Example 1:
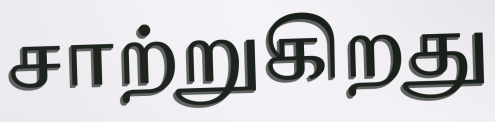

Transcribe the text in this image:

சாற்றுகிறது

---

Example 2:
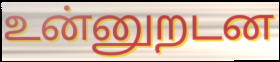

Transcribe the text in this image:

உன்னுறடன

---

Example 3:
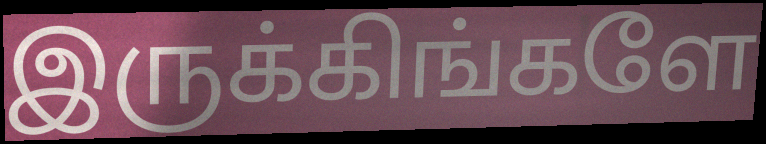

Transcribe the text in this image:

இருக்கிங்களே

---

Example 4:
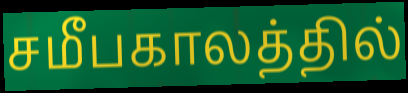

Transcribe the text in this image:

சமீபகாலத்தில்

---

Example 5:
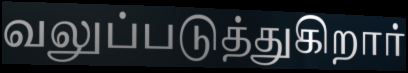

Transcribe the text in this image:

வலுப்படுத்துகிறார்